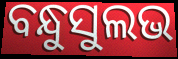
ବନ୍ଧୁସୁଲଭ